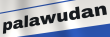
palawudan